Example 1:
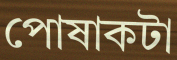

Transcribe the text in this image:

পোষাকটা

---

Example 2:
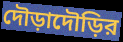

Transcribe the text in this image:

দৌড়াদৌড়ির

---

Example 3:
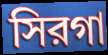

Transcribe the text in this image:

সিরগা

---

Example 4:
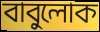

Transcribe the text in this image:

বাবুলোক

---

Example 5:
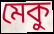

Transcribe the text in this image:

মেকু